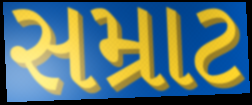
સમ્રાટ